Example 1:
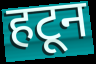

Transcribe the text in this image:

हटून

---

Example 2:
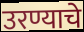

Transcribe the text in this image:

उरण्याचे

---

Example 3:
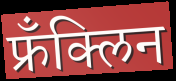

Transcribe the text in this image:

फ्रँक्लिन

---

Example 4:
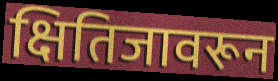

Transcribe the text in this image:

क्षितिजावरून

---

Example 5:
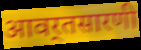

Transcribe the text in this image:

आवर्तसारणी